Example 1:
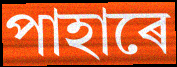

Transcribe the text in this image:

পাহাৰে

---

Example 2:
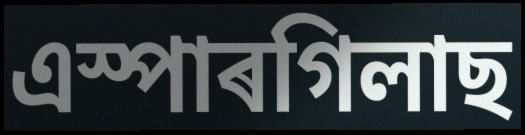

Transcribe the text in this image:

এস্পাৰগিলাছ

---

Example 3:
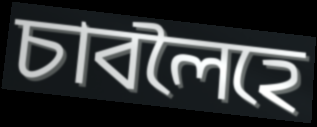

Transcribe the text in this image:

চাবলৈহে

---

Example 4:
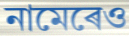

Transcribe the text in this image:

নামেৰেও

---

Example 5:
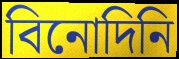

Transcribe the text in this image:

বিনোদিনি